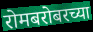
रोमबरोबरच्या